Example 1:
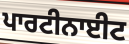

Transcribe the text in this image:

ਪਾਰਟੀਨਾਈਟ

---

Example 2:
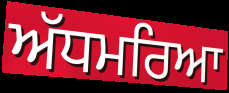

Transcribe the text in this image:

ਅੱਧਮਰਿਆ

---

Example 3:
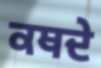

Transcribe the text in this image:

ਕਥਦੇ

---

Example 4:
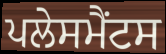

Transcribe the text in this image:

ਪਲੇਸਮੈਂਟਸ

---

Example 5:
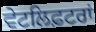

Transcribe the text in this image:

ਵੇਟਲਿਫ਼ਟਰਾਂ